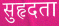
सुहृदता